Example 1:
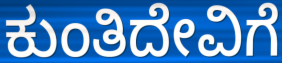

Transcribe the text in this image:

ಕುಂತಿದೇವಿಗೆ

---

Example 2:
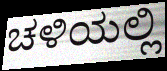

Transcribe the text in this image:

ಚಳಿಯಲ್ಲಿ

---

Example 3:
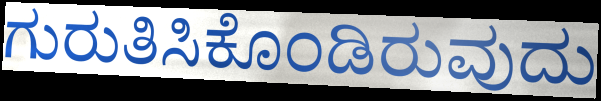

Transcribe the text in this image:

ಗುರುತಿಸಿಕೊಂಡಿರುವುದು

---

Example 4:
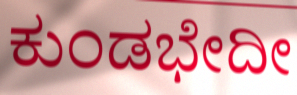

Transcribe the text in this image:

ಕುಂಡಭೇದೀ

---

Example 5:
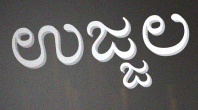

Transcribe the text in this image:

ಉಜ್ಜಲ